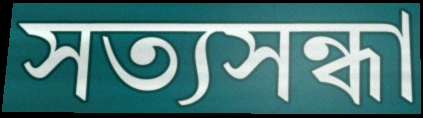
সত্যসন্ধা